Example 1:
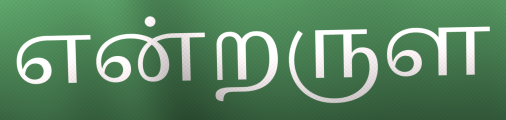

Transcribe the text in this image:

என்றருள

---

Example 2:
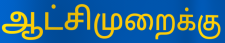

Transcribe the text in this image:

ஆட்சிமுறைக்கு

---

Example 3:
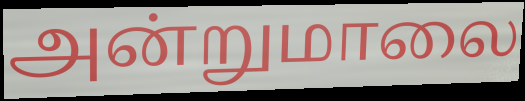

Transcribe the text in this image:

அன்றுமாலை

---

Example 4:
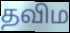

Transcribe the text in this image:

தவிம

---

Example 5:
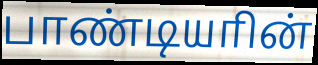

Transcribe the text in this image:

பாண்டியரின்